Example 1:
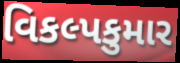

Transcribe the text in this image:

વિકલ્પકુમાર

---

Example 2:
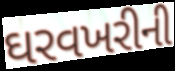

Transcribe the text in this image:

ઘરવખરીની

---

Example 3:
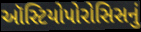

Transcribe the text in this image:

ઑસ્ટિયોપોરોસિસનું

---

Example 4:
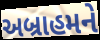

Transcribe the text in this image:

અબ્રાહમને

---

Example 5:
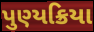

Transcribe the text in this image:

પુણ્યક્રિયા